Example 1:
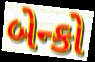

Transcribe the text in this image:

બેન્કો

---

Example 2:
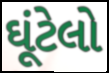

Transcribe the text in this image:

ઘૂંટેલો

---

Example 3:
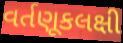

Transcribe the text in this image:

વર્તણૂકલક્ષી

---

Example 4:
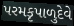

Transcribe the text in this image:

પરમકૃપાળુદેવે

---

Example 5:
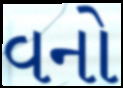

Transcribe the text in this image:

વનો